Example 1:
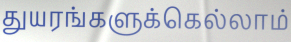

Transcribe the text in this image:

துயரங்களுக்கெல்லாம்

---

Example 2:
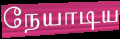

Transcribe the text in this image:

நேயாடிய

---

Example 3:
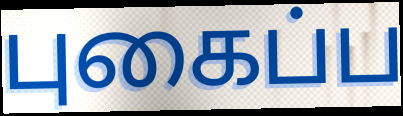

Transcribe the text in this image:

புகைப்ப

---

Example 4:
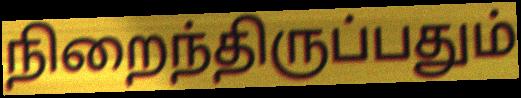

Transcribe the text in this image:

நிறைந்திருப்பதும்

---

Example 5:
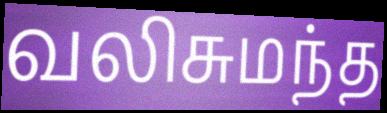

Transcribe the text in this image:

வலிசுமந்த